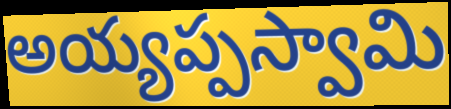
అయ్యప్పస్వామి